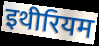
इथीरियम